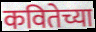
कवितेच्या